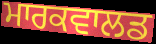
ਮਾਰਕਵਾਲਡ